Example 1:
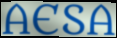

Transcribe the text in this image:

AESA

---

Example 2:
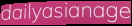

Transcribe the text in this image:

dailyasianage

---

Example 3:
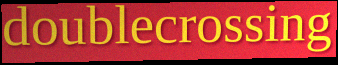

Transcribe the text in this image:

doublecrossing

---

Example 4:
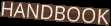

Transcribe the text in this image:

HANDBOOK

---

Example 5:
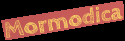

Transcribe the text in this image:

Mormodica